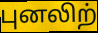
புனலிற்